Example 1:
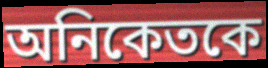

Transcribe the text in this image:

অনিকেতকে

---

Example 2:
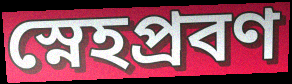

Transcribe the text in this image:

স্নেহপ্রবণ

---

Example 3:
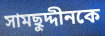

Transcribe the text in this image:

সামছুদ্দীনকে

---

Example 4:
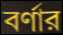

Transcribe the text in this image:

বর্ণার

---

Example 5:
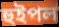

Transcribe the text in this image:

হুইপল